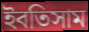
ইবতিসাম